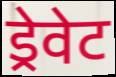
ड्रेवेट